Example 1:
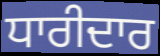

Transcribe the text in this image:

ਧਾਰੀਦਾਰ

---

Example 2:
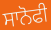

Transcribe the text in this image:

ਸਾਨੋਫੀ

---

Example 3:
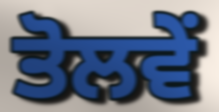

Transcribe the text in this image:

ਤੋਲਵੇਂ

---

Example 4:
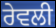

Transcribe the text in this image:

ਰੇਵਲੀ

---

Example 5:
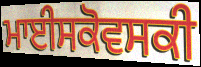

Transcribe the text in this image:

ਮਾਈਸਕੋਵਸਕੀ